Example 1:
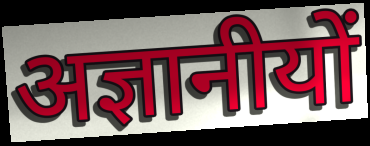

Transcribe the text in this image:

अज्ञानीयों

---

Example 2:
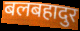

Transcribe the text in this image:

बलबहादुर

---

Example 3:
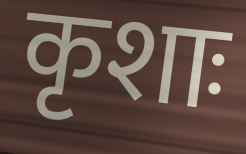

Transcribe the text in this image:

कृशाः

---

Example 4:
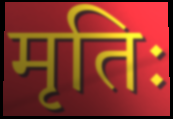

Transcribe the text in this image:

मृतिः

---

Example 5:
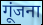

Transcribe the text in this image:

गूंजना